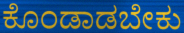
ಕೊಂಡಾಡಬೇಕು